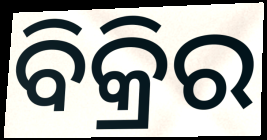
ବିକ୍ରିର